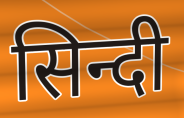
सिन्दी